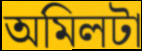
অমিলটা